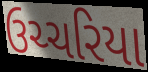
ઉચ્ચરિયા